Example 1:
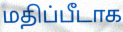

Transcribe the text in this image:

மதிப்பீடாக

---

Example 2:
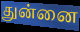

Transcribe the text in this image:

துன்னை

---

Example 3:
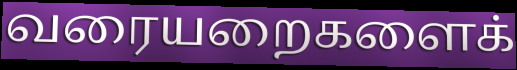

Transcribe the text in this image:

வரையறைகளைக்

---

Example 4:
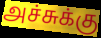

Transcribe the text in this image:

அச்சுக்கு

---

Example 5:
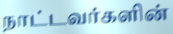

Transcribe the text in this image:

நாட்டவர்களின்